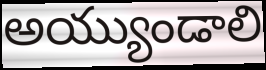
అయ్యుండాలి